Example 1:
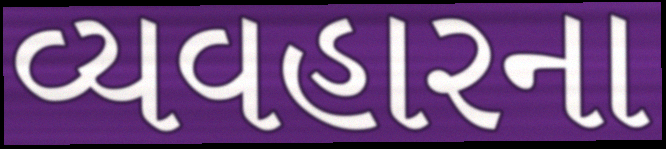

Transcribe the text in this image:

વ્યવહારના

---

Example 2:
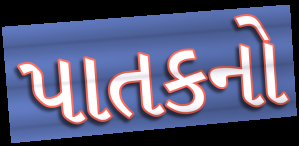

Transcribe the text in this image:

પાતકનો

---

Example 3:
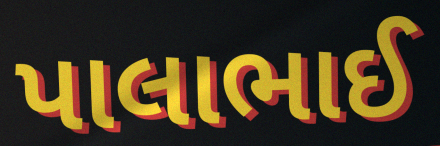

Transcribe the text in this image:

પાલાભાઈ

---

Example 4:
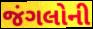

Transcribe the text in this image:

જંગલોની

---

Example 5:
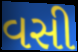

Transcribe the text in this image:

વસી